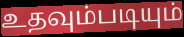
உதவும்படியும்